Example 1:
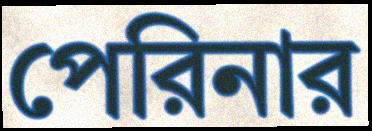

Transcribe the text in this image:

পেরিনার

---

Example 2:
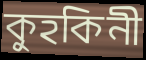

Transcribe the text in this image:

কুহকিনী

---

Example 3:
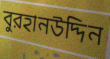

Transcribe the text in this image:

বুরহানউদ্দিন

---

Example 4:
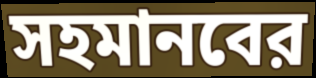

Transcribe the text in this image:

সহমানবের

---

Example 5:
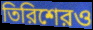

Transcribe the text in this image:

তিরিশেরও